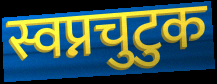
स्वप्नचुटुक